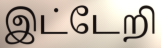
இட்டேறி